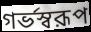
গর্ভস্বরূপ